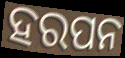
ହରପନ